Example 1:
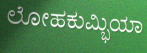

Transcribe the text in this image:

ಲೋಹಕುಮ್ಭಿಯಾ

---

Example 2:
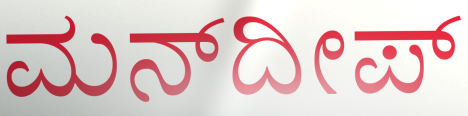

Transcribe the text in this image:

ಮನ್‍ದೀಪ್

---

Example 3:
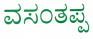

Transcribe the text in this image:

ವಸಂತಪ್ಪ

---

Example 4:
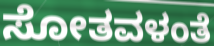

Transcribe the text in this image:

ಸೋತವಳಂತೆ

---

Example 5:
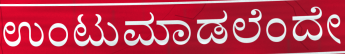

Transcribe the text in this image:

ಉಂಟುಮಾಡಲೆಂದೇ